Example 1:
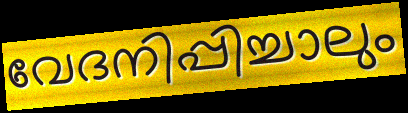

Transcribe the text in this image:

വേദനിപ്പിച്ചാലും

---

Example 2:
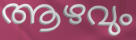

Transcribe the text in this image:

ആഴവും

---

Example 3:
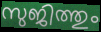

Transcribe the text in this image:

സുജിത്തും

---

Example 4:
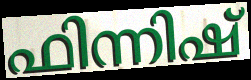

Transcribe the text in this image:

ഫിന്നിഷ്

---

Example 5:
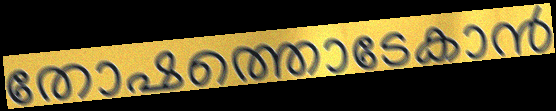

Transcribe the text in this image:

തോഷത്തൊടേകാൻ